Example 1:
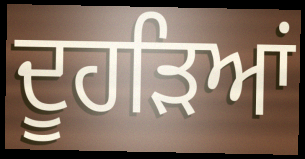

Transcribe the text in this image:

ਦੂਹੜਿਆਂ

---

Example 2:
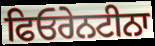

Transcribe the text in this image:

ਫਿਓਰੇਨਟੀਨਾ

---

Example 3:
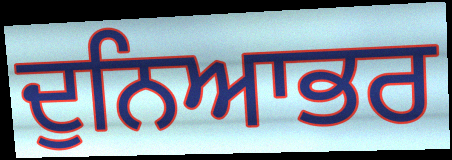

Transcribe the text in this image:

ਦੁਨਿਆਭਰ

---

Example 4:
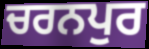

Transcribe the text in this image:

ਚਰਨਪੁਰ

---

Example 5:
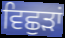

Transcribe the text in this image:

ਵਿਛੁੜਾਂ